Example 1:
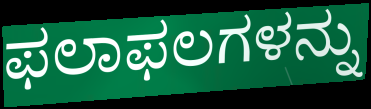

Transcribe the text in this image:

ಫಲಾಫಲಗಳನ್ನು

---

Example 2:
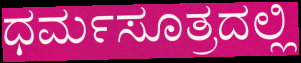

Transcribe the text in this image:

ಧರ್ಮಸೂತ್ರದಲ್ಲಿ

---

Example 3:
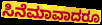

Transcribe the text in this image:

ಸಿನೆಮಾವಾದರೂ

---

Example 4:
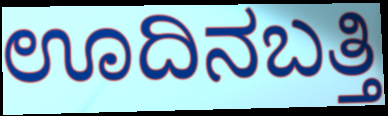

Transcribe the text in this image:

ಊದಿನಬತ್ತಿ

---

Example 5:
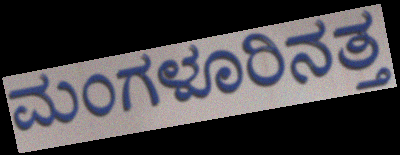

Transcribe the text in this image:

ಮಂಗಳೂರಿನತ್ತ